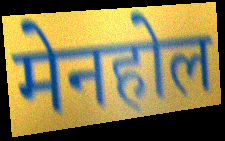
मेनहोल